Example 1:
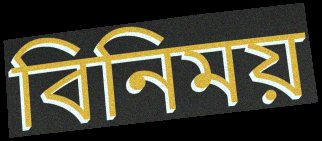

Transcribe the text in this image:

বিনিময়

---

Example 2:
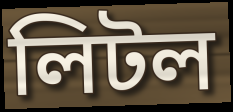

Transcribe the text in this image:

লিটল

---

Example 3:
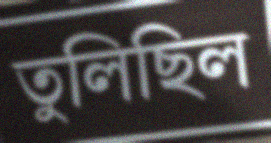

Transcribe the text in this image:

তুলিছিল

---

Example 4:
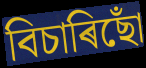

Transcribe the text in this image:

বিচাৰিছোঁ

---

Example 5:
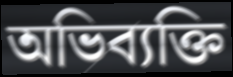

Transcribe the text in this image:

অভিব্যক্তি